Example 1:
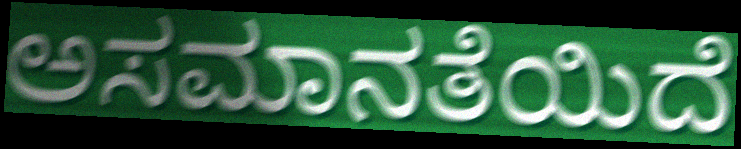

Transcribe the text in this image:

ಅಸಮಾನತೆಯಿದೆ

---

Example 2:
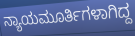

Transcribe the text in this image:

ನ್ಯಾಯಮೂರ್ತಿಗಳಾಗಿದ್ದ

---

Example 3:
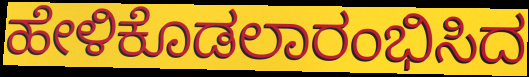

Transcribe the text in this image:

ಹೇಳಿಕೊಡಲಾರಂಭಿಸಿದ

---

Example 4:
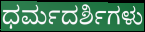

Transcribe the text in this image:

ಧರ್ಮದರ್ಶಿಗಳು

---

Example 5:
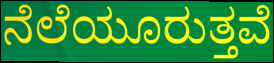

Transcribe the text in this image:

ನೆಲೆಯೂರುತ್ತವೆ